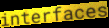
interfaces